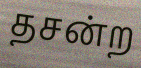
தசன்ற